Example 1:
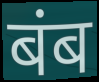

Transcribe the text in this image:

बंब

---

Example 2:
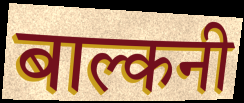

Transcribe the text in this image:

बाल्कनी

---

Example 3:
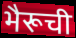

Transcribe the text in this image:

भैरूची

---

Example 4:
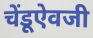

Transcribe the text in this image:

चेंडूऐवजी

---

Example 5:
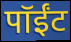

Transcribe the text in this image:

पॉईंट